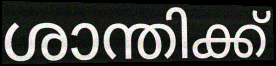
ശാന്തിക്ക്